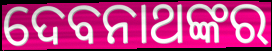
ଦେବନାଥଙ୍କର